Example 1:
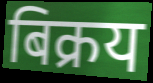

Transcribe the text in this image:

बिक्रय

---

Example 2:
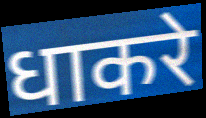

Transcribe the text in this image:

धाकरे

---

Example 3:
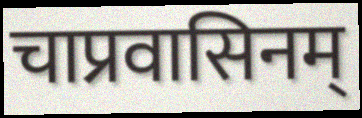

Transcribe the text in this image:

चाप्रवासिनम्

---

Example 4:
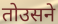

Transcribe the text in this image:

तोउसने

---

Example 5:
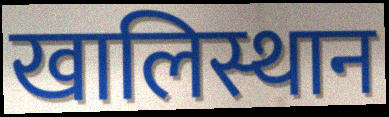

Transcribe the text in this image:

खालिस्थान